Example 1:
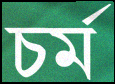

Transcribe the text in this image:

চৰ্ম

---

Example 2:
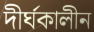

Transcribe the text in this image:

দীৰ্ঘকালীন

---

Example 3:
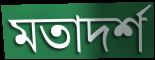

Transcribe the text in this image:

মতাদৰ্শ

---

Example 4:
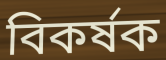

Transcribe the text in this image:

বিকৰ্ষক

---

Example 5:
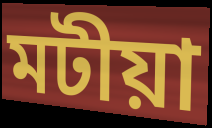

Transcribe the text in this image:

মটীয়া